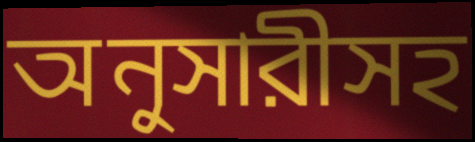
অনুসারীসহ